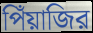
পিঁয়াজির